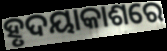
ହୃଦୟାକାଶରେ